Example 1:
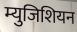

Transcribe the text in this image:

म्‍युजिशियन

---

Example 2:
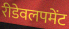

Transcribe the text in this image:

रीडेवलपमेंट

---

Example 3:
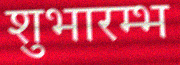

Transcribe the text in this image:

शुभारम्भ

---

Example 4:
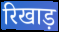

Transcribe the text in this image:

रिखाड़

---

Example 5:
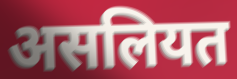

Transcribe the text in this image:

असलियत